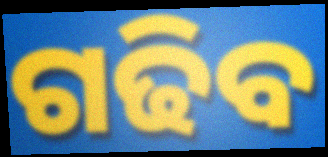
ଗଢିବ